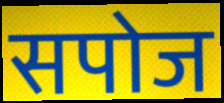
सपोज